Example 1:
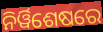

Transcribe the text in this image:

ନିର୍ୱିଶେଷରେ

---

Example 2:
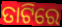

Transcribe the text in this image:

ତାଟିରେ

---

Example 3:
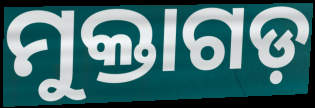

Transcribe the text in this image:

ମୁକ୍ତାଗଡ଼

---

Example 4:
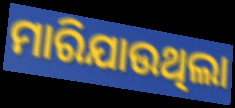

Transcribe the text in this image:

ମାରିଯାଉଥିଲା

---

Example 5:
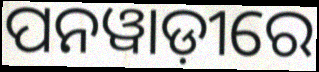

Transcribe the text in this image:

ପନୱାଡ଼ୀରେ